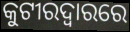
କୁଟୀରଦ୍ୱାରରେ